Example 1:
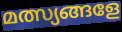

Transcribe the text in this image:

മത്സ്യങ്ങളേ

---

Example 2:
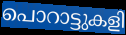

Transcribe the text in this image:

പൊറാട്ടുകളി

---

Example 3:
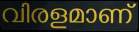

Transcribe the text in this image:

വിരളമാണ്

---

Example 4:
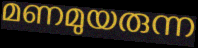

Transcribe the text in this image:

മണമുയരുന്ന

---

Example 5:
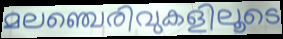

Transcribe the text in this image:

മലഞ്ചെരിവുകളിലൂടെ